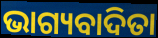
ଭାଗ୍ୟବାଦିତା